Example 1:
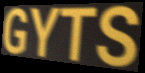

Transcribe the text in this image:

GYTS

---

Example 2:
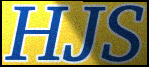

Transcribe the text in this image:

HJS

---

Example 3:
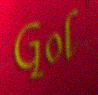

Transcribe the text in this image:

Gol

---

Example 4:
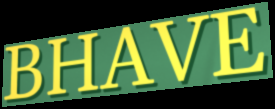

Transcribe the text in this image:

BHAVE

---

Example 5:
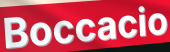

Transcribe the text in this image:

Boccacio